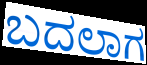
ಬದಲಾಗ